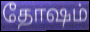
தோஷம்